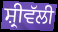
ਸ਼੍ਰੀਵੱਲੀ